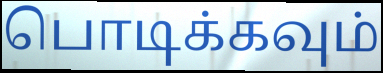
பொடிக்கவும்